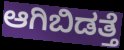
ಆಗಿಬಿಡತ್ತೆ